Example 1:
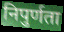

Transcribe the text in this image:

निपुर्णता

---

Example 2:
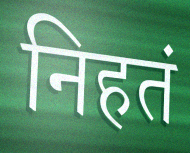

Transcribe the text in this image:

निहतं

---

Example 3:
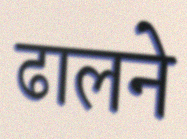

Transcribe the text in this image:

ढालने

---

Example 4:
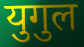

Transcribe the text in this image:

युगुल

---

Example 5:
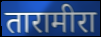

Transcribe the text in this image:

तारामीरा